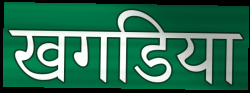
खगडिया